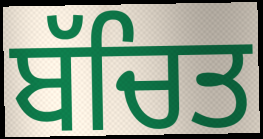
ਬੱਚਿਤ